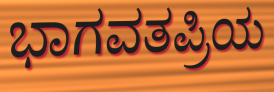
ಭಾಗವತಪ್ರಿಯ